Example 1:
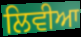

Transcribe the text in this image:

ਲਿਵੀਆ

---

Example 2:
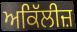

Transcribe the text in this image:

ਅਕਿੱਲੀਜ਼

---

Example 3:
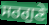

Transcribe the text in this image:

ਸਰਗੁਣੇ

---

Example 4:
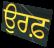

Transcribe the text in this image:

ਉਰਫ਼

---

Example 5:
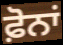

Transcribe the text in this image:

ਫ਼ੋਨਾਂ